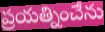
ప్రయత్నించేను